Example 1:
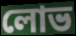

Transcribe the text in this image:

লোভ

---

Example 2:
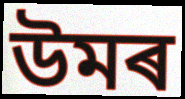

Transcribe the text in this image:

উমৰ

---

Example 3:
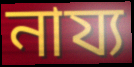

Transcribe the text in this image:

নায্য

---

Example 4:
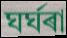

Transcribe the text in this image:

ঘৰ্ঘৰা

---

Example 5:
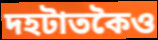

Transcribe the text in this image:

দহটাতকৈও